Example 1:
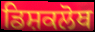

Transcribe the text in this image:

ਡਿਸ਼ਕਲੋਥ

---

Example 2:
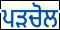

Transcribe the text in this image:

ਪੜਚੋਲ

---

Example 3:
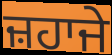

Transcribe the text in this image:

ਜ਼ਹਾਜੇ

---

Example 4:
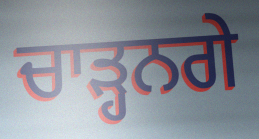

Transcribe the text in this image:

ਚਾੜ੍ਹਨਗੇ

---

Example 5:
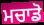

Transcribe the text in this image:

ਮਚਾਡੋ